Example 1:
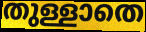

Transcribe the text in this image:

തുള്ളാതെ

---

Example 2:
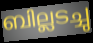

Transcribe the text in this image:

ബില്ലടച്ചു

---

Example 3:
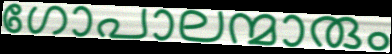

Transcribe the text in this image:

ഗോപാലന്മാരും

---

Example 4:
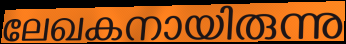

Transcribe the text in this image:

ലേഖകനായിരുന്നു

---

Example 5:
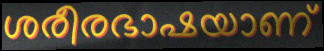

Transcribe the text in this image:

ശരീരഭാഷയാണ്